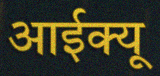
आईक्‍यू